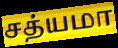
சத்யமா